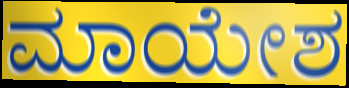
ಮಾಯೇಶ